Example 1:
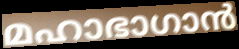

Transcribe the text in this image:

മഹാഭാഗാൻ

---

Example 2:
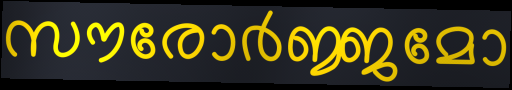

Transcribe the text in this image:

സൗരോർജ്ജമോ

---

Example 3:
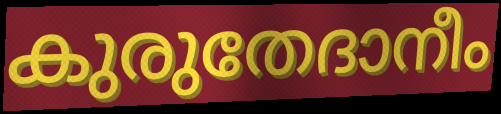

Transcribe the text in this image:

കുരുതേദാനീം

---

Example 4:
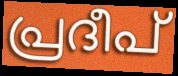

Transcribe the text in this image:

പ്രദീപ്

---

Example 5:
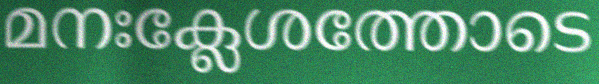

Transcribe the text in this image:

മനഃക്ലേശത്തോടെ